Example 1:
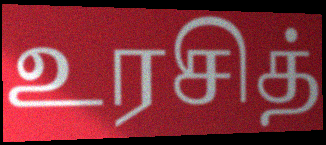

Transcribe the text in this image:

உரசித்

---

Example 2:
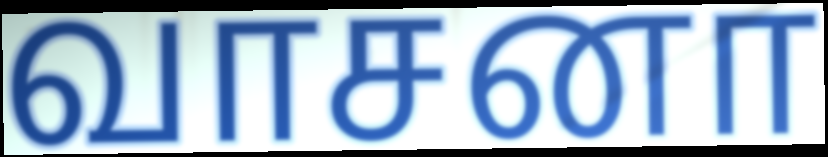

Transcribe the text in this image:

வாசனா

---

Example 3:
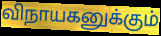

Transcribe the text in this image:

விநாயகனுக்கும்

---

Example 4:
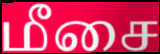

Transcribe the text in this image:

மீசை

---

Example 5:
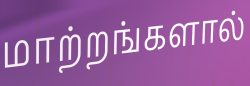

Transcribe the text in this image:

மாற்றங்களால்